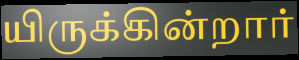
யிருக்கின்றார்